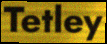
Tetley